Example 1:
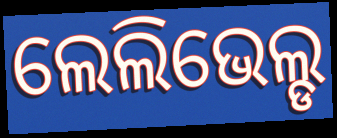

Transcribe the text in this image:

ଲେଲିଭେଲ୍ଡ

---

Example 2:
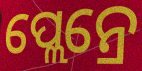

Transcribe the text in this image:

ପ୍ଲେନ୍ରେ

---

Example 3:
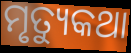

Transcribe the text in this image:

ମୃତ୍ୟୁକଥା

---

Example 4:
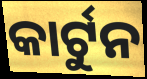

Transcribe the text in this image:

କାର୍ଟୁନ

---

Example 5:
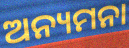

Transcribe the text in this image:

ଅନ୍ୟମନା